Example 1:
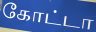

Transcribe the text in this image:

கோட்டா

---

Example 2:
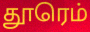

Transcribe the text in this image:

தூரெம்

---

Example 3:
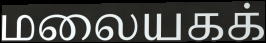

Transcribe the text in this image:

மலையகக்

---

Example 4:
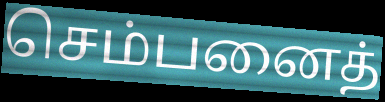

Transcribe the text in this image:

செம்பனைத்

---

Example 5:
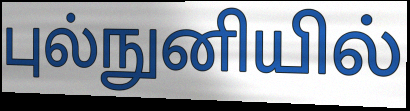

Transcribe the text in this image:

புல்நுனியில்